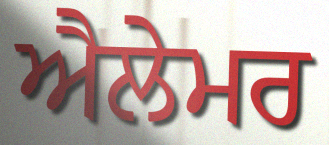
ਐਲੇਮਰ